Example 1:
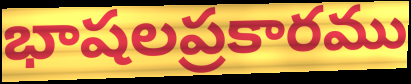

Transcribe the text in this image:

భాషలప్రకారము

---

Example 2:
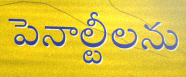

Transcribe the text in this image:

పెనాల్టీలను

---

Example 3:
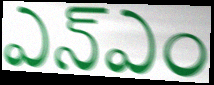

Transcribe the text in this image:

ఎన్ఎం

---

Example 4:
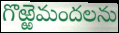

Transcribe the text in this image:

గొఱ్ఱెమందలను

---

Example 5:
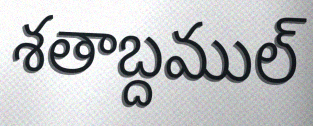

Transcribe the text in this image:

శతాబ్దముల్